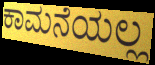
ಕಾಮನೆಯಲ್ಲ